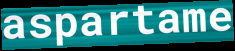
aspartame